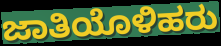
ಜಾತಿಯೊಳಿಹರು